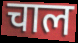
चाल